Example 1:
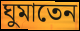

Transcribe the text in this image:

ঘুমাতেন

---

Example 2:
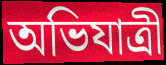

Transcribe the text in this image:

অভিযাত্রী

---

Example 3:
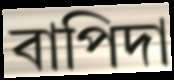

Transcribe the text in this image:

বাপিদা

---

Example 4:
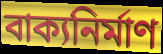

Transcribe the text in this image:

বাক্যনির্মাণ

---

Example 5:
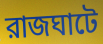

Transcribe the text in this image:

রাজঘাটে